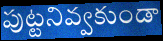
పుట్టనివ్వకుండా